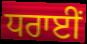
ਧਰਾਈਂ